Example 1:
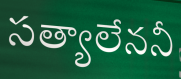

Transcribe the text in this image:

సత్యాలేననీ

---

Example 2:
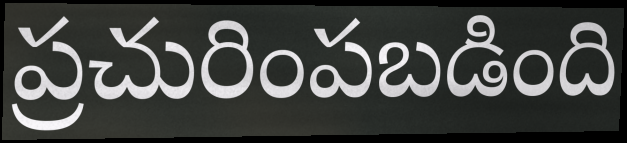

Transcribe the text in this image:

ప్రచురింపబడింది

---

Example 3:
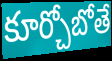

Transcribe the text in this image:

కూర్చోబోతే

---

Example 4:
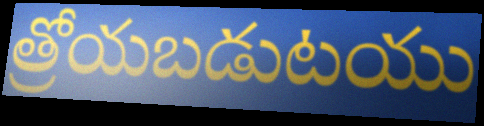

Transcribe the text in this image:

త్రోయబడుటయు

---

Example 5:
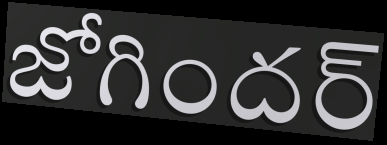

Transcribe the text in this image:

జోగిందర్